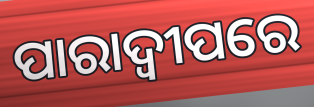
ପାରାଦ୍ୱୀପରେ